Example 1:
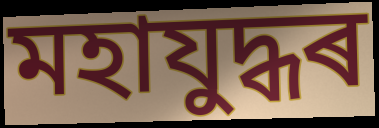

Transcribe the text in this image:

মহাযুদ্ধৰ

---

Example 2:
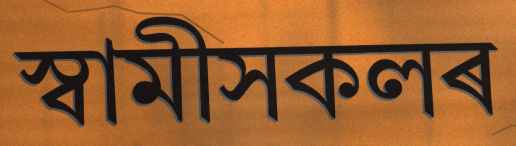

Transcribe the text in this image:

স্বামীসকলৰ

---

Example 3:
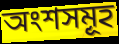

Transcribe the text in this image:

অংশসমূহ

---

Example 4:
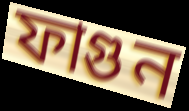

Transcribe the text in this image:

ফাগুন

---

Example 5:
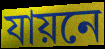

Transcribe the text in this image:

যায়নে